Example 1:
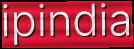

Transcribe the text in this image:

ipindia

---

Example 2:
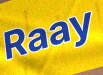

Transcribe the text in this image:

Raay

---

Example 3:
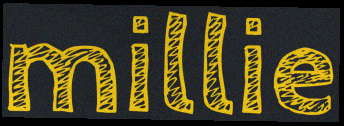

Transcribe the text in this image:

millie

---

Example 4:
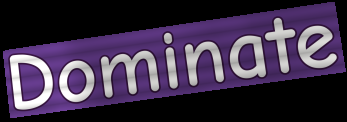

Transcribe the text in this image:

Dominate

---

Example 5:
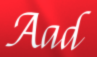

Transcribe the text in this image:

Aad